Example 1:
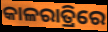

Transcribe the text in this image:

କାଳରାତ୍ରିରେ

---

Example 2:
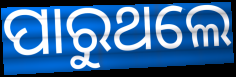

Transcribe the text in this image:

ପାରୁଥଲେ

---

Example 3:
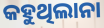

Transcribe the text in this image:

କହୁଥିଲାନା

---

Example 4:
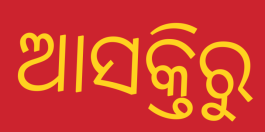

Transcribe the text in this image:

ଆସକ୍ତିରୁ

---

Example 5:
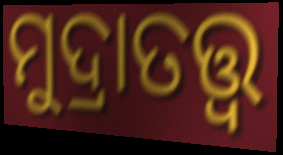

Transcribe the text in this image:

ମୁଦ୍ରାତତ୍ତ୍ବ